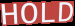
HOLD